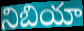
నిబియా